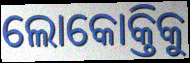
ଲୋକୋକ୍ତିକୁ